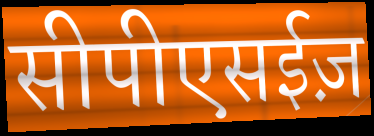
सीपीएसईज़